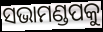
ସଭାମଣ୍ଡପକୁ